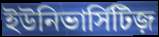
ইউনিভার্সিটিজ়